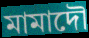
মামাদৌ